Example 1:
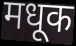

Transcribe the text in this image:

मधूक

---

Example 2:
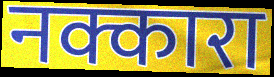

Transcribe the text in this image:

नक्कारा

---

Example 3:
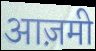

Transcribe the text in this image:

आज़मी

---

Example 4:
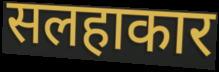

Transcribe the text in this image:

सलहाकार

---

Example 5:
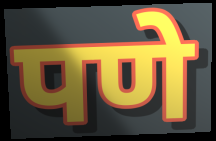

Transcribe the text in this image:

पणे